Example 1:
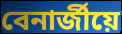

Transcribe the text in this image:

বেনাৰ্জীয়ে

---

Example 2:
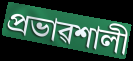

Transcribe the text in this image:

প্ৰভাৱশালী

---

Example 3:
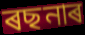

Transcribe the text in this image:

ৰছনাৰ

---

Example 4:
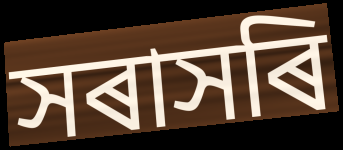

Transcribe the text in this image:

সৰাসৰি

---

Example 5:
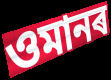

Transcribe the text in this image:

ওমানৰ